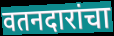
वतनदारांचा